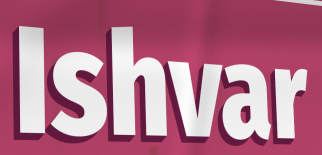
Ishvar